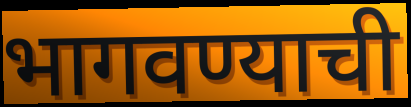
भागवण्याची